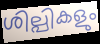
ശില്പികളും